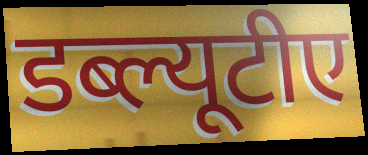
डब्ल्यूटीए